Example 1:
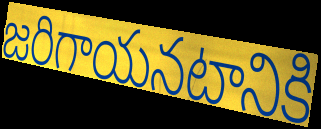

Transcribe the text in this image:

జరిగాయనటానికి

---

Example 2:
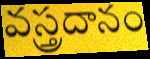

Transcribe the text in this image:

వస్త్రదానం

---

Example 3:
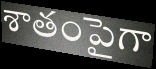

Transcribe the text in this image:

శాతంపైగా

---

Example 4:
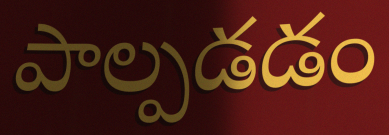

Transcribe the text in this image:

పాల్పడడం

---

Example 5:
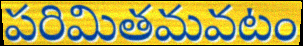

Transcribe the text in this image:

పరిమితమవటం